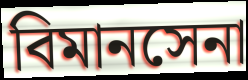
বিমানসেনা